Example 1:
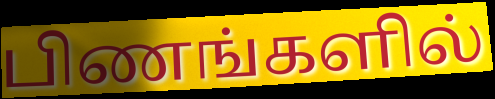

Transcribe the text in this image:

பிணங்களில்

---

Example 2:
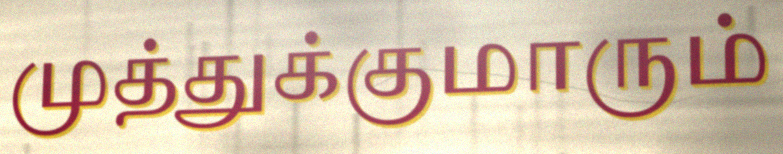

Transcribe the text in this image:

முத்துக்குமாரும்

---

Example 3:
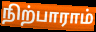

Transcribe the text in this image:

நிற்பாராம்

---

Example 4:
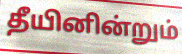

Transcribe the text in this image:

தீயினின்றும்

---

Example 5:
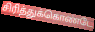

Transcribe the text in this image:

சிரித்துக்கொண்டே